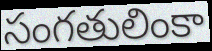
సంగతులింకా